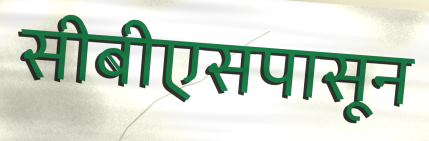
सीबीएसपासून